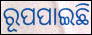
ରୂପପାଇଛି